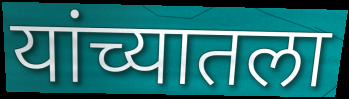
यांच्यातला